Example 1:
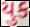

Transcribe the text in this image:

યુક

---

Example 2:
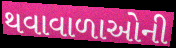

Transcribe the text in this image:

થવાવાળાઓની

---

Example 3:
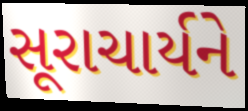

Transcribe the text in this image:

સૂરાચાર્યને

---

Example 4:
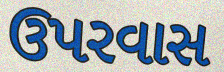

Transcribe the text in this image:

ઉપરવાસ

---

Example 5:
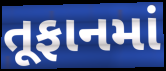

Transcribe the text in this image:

તૂફાનમાં